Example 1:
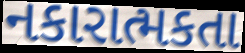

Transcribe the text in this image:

નકારાત્મકતા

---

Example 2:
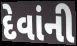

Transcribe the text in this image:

દેવાંની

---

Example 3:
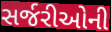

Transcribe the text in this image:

સર્જરીઓની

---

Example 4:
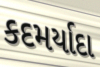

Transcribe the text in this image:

કદમર્યાદા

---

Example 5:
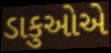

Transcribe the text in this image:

ડાકુઓએ